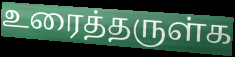
உரைத்தருள்க